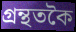
গ্ৰন্থতকৈ